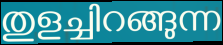
തുളച്ചിറങ്ങുന്ന